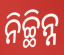
ନିଚ୍ଛିନ୍ନ